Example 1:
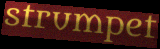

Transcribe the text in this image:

strumpet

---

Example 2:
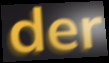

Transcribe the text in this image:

der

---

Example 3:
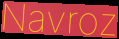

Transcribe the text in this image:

Navroz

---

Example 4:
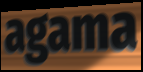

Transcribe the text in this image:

agama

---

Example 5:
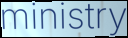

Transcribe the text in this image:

ministry